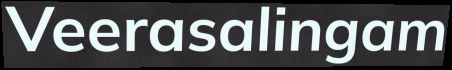
Veerasalingam